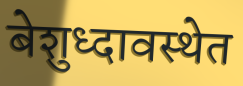
बेशुध्दावस्थेत